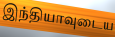
இந்தியாவுடைய